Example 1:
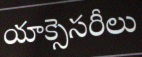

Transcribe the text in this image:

యాక్సెసరీలు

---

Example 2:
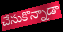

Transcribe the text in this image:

చేసుకొన్నాడా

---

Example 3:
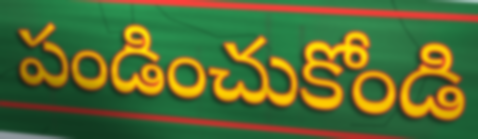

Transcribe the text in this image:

పండించుకోండి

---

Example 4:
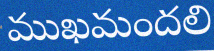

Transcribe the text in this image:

ముఖమందలి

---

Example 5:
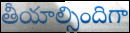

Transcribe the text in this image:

తీయాల్సిందిగా